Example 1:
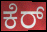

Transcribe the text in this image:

ಕೆರ್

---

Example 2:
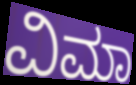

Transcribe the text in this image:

ವಿಮಾ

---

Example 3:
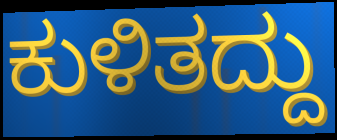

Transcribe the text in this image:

ಕುಳಿತದ್ದು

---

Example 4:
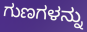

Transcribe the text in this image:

ಗುಣಗಳನ್ನು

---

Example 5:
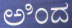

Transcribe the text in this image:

ಅಿಂದ